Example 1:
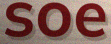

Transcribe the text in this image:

soe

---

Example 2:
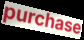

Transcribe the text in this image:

purchase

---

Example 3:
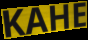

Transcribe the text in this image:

KAHE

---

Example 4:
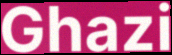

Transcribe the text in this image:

Ghazi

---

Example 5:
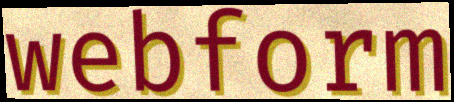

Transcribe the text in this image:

webform